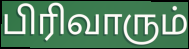
பிரிவாரும்